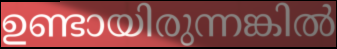
ഉണ്ടായിരുന്നങ്കിൽ